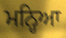
ਮਨ੍ਹਿਆ